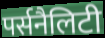
पर्सनैलिटी